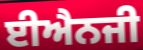
ਈਐਨਜੀ